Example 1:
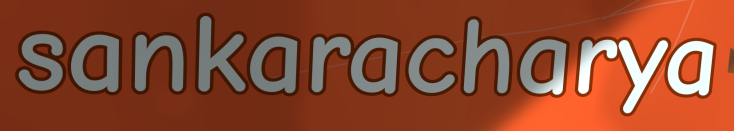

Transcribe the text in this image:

sankaracharya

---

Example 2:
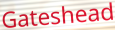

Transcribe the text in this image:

Gateshead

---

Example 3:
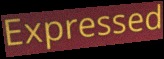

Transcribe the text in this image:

Expressed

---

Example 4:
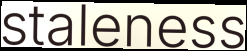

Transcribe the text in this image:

staleness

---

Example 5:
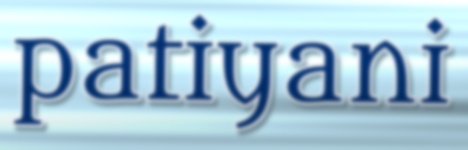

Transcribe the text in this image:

patiyani